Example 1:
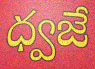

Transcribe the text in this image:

ధ్వజే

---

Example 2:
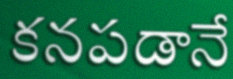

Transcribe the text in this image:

కనపడానే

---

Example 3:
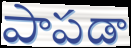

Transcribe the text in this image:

పాపడా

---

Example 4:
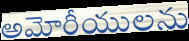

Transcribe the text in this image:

అమోరీయులను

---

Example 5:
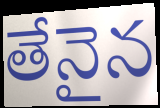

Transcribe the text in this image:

తేనైన